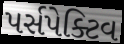
પર્સપેક્ટિવ